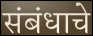
संबंधाचे